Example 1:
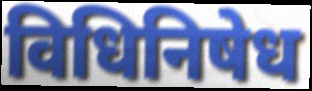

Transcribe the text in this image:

विधिनिषेध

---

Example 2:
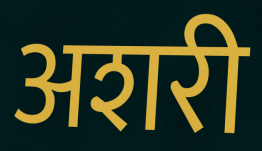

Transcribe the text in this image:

अशरी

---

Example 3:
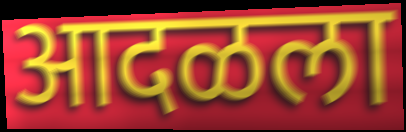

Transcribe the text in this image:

आदळला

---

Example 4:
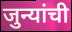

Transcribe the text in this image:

जुन्यांची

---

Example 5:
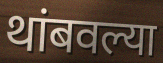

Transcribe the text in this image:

थांबवल्या